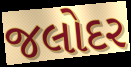
જલોદર